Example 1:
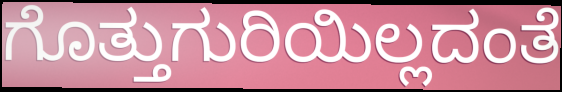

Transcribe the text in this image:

ಗೊತ್ತುಗುರಿಯಿಲ್ಲದಂತೆ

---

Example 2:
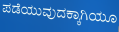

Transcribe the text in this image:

ಪಡೆಯುವುದಕ್ಕಾಗಿಯೂ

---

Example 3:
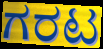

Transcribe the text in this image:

ಗರಟ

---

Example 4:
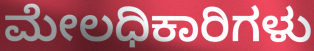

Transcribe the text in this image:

ಮೇಲಧಿಕಾರಿಗಳು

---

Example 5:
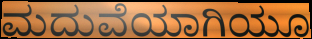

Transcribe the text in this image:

ಮದುವೆಯಾಗಿಯೂ